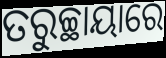
ତରୁଚ୍ଛାୟାରେ